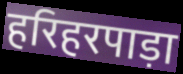
हरिहरपाड़ा